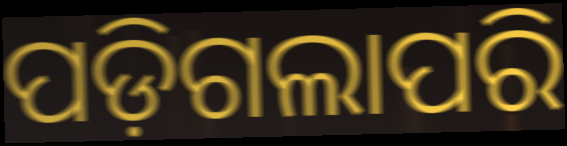
ପଡ଼ିଗଲାପରି